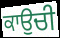
ਕਾਉਚੀ